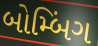
બોમ્બિંગ